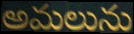
అమలును